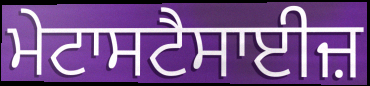
ਮੇਟਾਸਟੈਸਾਈਜ਼